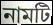
নামটি